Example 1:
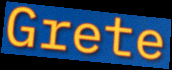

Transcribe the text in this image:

Grete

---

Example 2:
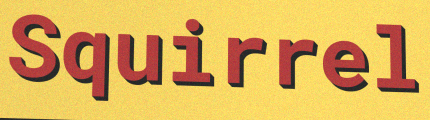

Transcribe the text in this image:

Squirrel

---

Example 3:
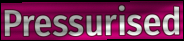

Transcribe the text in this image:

Pressurised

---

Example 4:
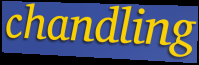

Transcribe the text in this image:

chandling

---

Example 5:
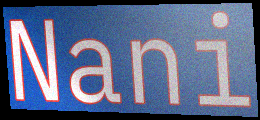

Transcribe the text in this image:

Nani